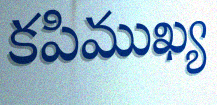
కపిముఖ్య